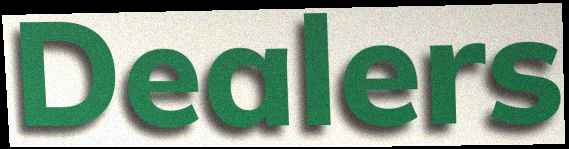
Dealers